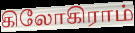
கிலோகிராம்